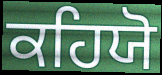
ਕਹਿਯੋ